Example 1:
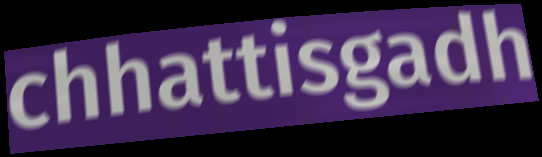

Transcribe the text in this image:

chhattisgadh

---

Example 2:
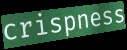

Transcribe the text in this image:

crispness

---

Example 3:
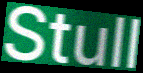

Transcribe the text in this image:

Stull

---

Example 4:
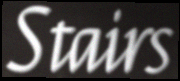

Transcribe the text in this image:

Stairs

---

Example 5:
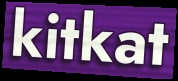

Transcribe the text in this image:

kitkat